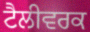
ਟੈਲੀਵਰਕ